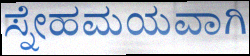
ಸ್ನೇಹಮಯವಾಗಿ